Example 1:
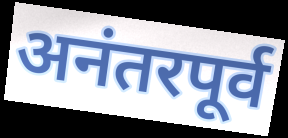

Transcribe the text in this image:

अनंतरपूर्व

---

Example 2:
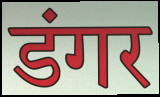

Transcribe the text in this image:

डंगर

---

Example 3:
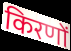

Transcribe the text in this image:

किरणों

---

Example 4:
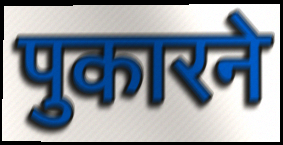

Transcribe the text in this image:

पुकारने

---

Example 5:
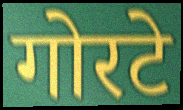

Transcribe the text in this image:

गोरटे